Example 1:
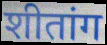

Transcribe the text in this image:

शीतांग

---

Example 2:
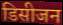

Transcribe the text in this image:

डिसीजन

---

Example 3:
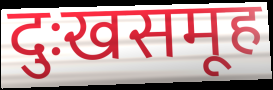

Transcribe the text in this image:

दुःखसमूह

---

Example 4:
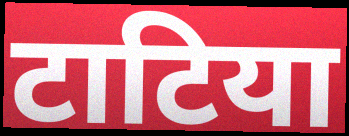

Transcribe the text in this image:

टाटिया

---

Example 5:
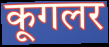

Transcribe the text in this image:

कूगलर